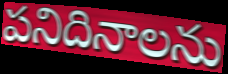
పనిదినాలను